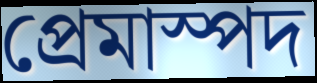
প্রেমাস্পদ